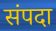
संपदा